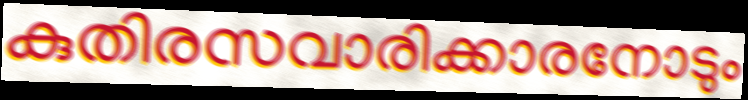
കുതിരസവാരിക്കാരനോടും